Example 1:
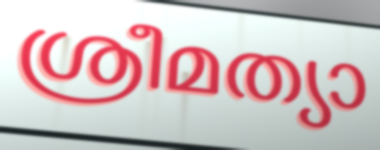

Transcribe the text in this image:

ശ്രീമത്യാ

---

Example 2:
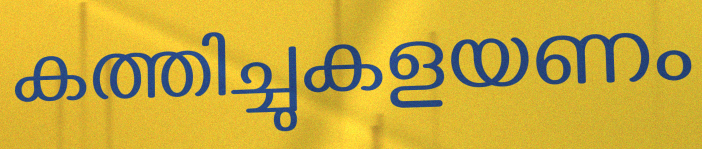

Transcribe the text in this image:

കത്തിച്ചുകളയണം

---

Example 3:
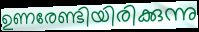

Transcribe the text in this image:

ഉണരേണ്ടിയിരിക്കുന്നു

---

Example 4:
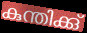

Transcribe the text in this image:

കുന്തിക്കു്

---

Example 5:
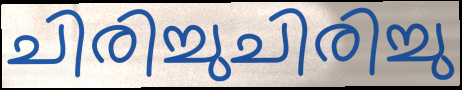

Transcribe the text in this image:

ചിരിച്ചുചിരിച്ചു